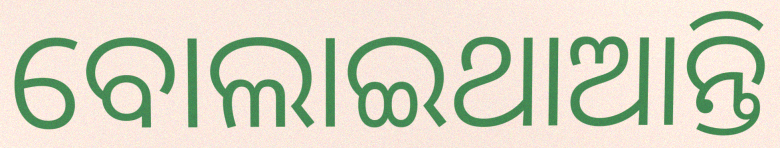
ବୋଲାଇଥାଆନ୍ତି